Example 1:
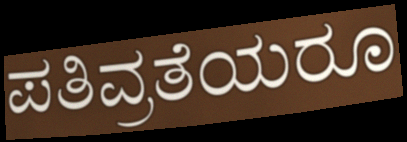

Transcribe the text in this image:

ಪತಿವ್ರತೆಯರೂ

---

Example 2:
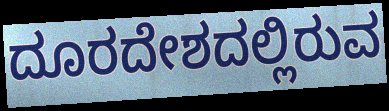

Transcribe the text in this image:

ದೂರದೇಶದಲ್ಲಿರುವ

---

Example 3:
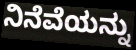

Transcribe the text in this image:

ನಿನೆವೆಯನ್ನು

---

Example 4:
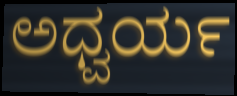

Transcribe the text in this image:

ಅಧ್ವರ್ಯ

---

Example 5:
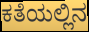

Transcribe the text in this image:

ಕತೆಯಲ್ಲಿನ